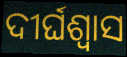
ଦୀର୍ଘଶ୍ଵାସ